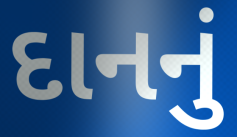
દાનનું